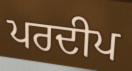
ਪਰਦੀਪ